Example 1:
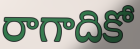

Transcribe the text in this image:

రాగాదికో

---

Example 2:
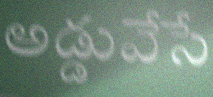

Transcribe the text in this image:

అడ్డువేసే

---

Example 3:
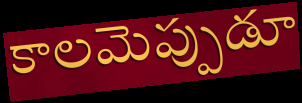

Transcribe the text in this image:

కాలమెప్పుడూ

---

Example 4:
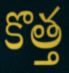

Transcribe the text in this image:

కొత్త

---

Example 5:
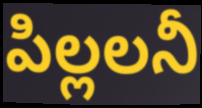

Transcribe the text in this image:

పిల్లలనీ